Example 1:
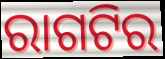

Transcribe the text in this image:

ରାଗଟିର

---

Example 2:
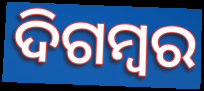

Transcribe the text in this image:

ଦିଗମ୍ବର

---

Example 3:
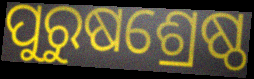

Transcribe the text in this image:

ପୁରୁଷଶ୍ରେଷ୍ଠ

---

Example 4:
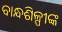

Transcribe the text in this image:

ବାନ୍ଧଶିଳ୍ପୀଙ୍କ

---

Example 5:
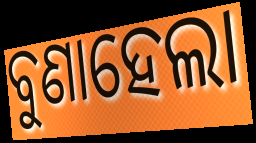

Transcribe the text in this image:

ବୁଣାହେଲା